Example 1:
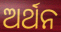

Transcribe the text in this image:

ଅର୍ଥନ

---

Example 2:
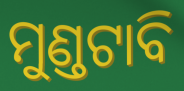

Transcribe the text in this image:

ମୁଣ୍ଡଟାବି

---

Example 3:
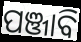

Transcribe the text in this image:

ପଞ୍ଜାବି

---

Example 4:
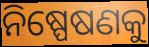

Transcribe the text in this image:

ନିଷ୍ପେଷଣକୁ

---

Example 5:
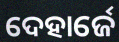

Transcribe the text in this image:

ଦେହାର୍ଜେ